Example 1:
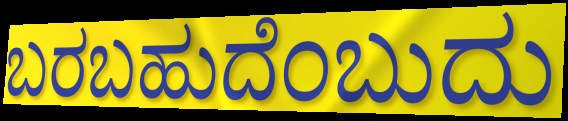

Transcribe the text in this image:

ಬರಬಹುದೆಂಬುದು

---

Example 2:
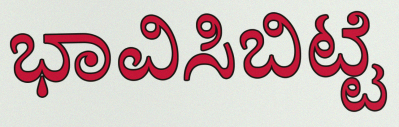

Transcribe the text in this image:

ಭಾವಿಸಿಬಿಟ್ಟೆ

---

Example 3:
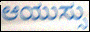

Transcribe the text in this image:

ಆಯುಸ್ಸು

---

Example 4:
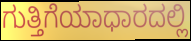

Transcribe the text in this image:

ಗುತ್ತಿಗೆಯಾಧಾರದಲ್ಲಿ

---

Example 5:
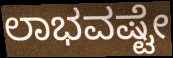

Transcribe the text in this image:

ಲಾಭವಷ್ಟೇ